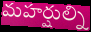
మహర్షుల్ని